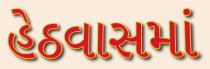
હેઠવાસમાં